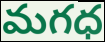
మగధ